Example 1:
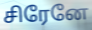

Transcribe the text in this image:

சிரேனே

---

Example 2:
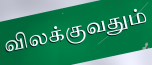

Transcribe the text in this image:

விலக்குவதும்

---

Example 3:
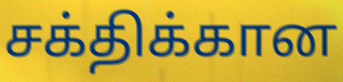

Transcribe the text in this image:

சக்திக்கான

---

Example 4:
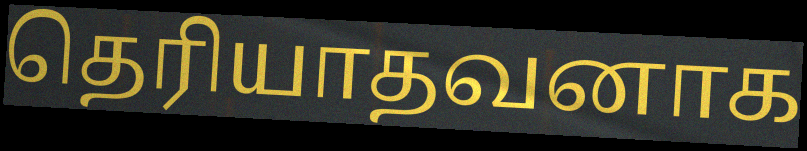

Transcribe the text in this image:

தெரியாதவனாக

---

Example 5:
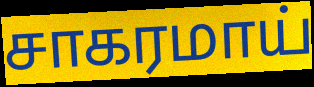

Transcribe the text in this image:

சாகரமாய்